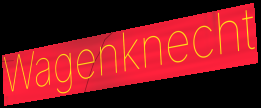
Wagenknecht